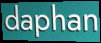
daphan